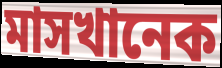
মাসখানেক